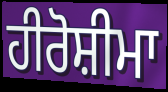
ਹੀਰੋਸ਼ੀਮਾ